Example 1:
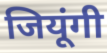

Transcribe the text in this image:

जियूंगी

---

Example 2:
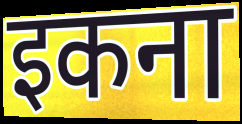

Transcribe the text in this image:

इकना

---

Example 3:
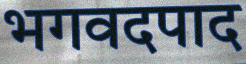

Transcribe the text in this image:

भगवदपाद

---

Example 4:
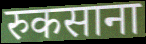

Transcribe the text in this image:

रुकसाना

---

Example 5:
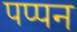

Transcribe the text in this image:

पप्पन